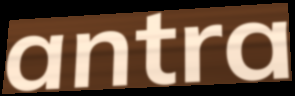
antra